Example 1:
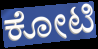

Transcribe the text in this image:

ಕೋಟಿ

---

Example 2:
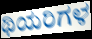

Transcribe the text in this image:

ಥಿಯರಿಗಳ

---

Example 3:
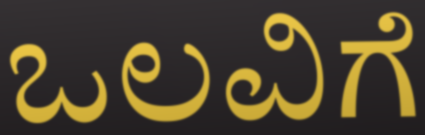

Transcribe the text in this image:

ಒಲವಿಗೆ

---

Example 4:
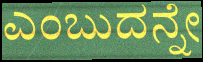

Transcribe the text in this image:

ಎಂಬುದನ್ನೇ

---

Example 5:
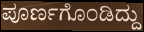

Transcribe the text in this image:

ಪೂರ್ಣಗೊಂಡಿದ್ದು